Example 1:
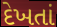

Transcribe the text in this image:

દેખતાં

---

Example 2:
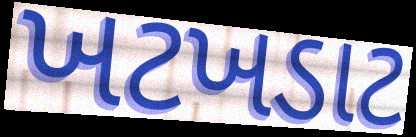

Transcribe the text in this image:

ખટખડાટ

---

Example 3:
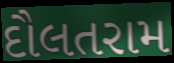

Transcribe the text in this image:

દૌલતરામ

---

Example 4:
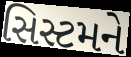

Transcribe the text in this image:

સિસ્ટમને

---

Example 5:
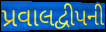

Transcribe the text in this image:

પ્રવાલદ્વીપની